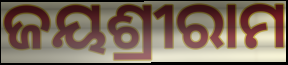
ଜୟଶ୍ରୀରାମ